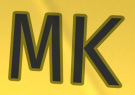
MK